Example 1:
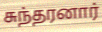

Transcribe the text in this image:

சுந்தரனார்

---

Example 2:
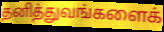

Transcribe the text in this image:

தனித்துவங்களைக்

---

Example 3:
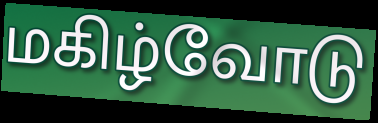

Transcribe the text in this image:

மகிழ்வோடு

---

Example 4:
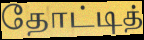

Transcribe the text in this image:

தோட்டித்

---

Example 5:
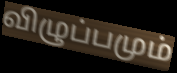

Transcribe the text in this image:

விழுப்பமும்